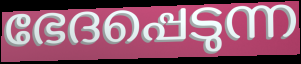
ഭേദപ്പെടുന്ന